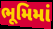
ભૂમિમાં